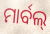
ମାର୍ବଲ୍